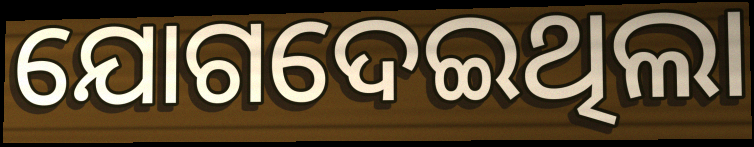
ଯୋଗଦେଇଥିଲା